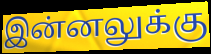
இன்னலுக்கு